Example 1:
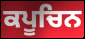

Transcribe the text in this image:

ਕਪੂਚਿਨ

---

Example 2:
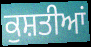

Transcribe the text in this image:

ਕੁਸ਼ਤੀਆਂ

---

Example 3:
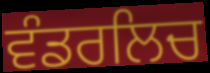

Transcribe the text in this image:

ਵੰਡਰਲਿਚ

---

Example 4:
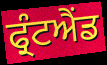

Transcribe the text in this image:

ਫ੍ਰੰਟਐਂਡ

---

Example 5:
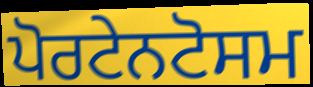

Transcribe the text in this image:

ਪੋਰਟੇਨਟੋਸਮ